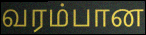
வரம்பான